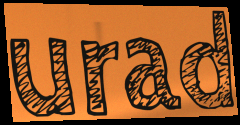
urad